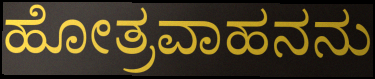
ಹೋತ್ರವಾಹನನು